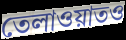
তেলাওয়াতও